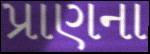
પ્રાણના